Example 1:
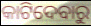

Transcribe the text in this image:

କାଟିଦେବାରୁ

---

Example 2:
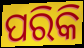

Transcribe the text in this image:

ପରିକି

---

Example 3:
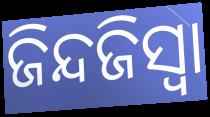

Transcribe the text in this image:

ଜିନ୍ଦଜିସ୍ୱା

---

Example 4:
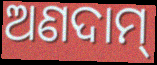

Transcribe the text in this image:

ଅଣଦାମ୍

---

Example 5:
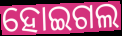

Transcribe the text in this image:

ହୋଇଗଲ